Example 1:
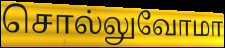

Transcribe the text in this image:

சொல்லுவோமா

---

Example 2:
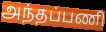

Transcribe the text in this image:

அந்தப்பணி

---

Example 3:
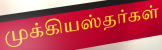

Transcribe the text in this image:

முக்கியஸ்தர்கள்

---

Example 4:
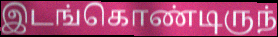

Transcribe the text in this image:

இடங்கொண்டிருந்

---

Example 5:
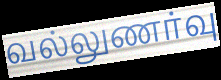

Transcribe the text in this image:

வல்லுணர்வு